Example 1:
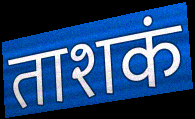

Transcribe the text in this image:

ताशकं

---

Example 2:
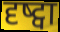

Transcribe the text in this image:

दृष्ट्वा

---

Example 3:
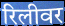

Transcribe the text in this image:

रिलीवर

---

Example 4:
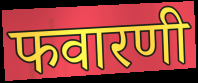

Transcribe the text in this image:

फवारणी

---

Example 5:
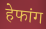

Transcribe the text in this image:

हेफांग